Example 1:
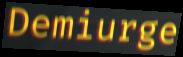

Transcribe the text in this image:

Demiurge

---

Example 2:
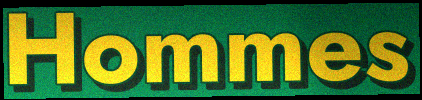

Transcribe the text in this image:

Hommes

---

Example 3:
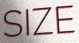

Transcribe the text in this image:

SIZE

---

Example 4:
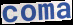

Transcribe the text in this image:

coma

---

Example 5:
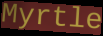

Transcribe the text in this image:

Myrtle